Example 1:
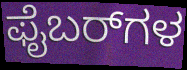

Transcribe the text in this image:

ಫೈಬರ್‌ಗಳ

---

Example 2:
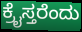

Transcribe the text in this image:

ಕ್ರೈಸ್ತರೆಂದು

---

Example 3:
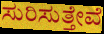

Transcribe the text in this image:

ಸುರಿಸುತ್ತೇವೆ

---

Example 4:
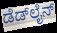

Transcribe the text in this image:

ಡೆಡ್‍ಲೈನ್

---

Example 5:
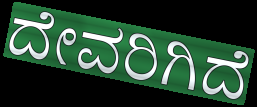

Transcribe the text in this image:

ದೇವರಿಗಿದೆ